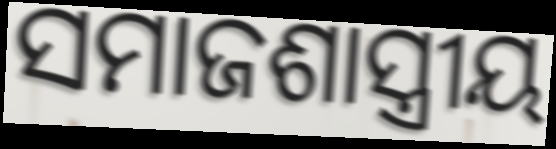
ସମାଜଶାସ୍ତ୍ରୀୟ